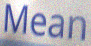
Mean